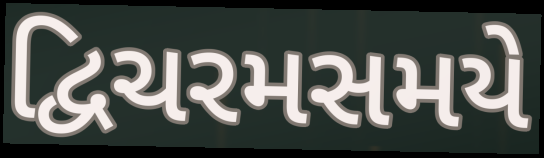
દ્વિચરમસમયે